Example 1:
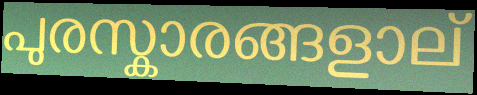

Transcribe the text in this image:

പുരസ്കാരങ്ങളാല്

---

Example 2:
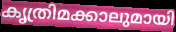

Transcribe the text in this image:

കൃത്രിമക്കാലുമായി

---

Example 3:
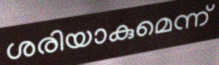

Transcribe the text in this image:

ശരിയാകുമെന്ന്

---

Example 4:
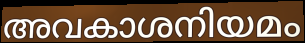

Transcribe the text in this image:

അവകാശനിയമം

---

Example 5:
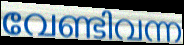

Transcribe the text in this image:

വേണ്ടിവന്ന